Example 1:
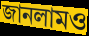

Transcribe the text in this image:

জানলামও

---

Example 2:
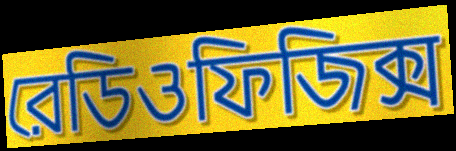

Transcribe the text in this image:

রেডিওফিজিক্স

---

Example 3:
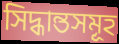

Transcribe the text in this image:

সিদ্ধান্তসমূহ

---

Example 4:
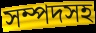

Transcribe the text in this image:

সম্পদসহ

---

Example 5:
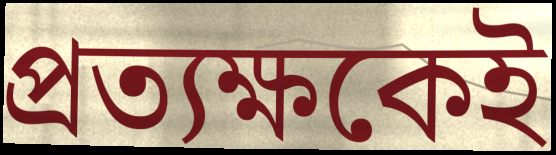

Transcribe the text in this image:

প্রত্যক্ষকেই